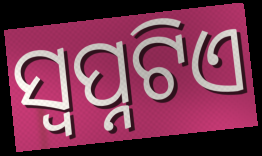
ସ୍ବପ୍ନଟିଏ